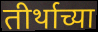
तीर्थाच्या